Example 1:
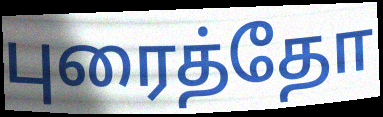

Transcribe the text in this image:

புரைத்தோ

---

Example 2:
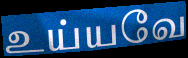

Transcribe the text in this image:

உய்யவே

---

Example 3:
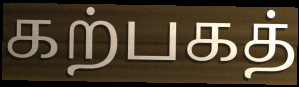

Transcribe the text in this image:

கற்பகத்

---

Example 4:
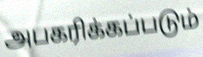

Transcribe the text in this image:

அபகரிக்கப்படும்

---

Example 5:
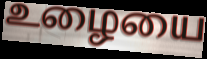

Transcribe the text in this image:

உழையை